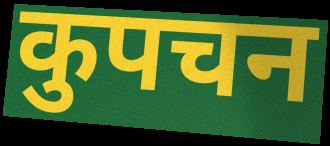
कुपचन